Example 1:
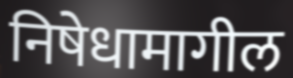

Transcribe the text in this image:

निषेधामागील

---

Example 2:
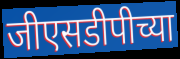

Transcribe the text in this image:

जीएसडीपीच्या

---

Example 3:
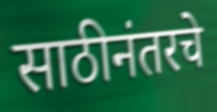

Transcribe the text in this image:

साठीनंतरचे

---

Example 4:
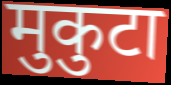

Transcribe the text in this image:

मुकुटा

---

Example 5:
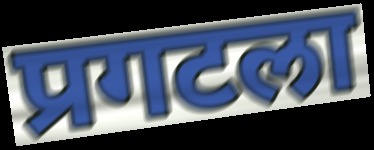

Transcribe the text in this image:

प्रगटला